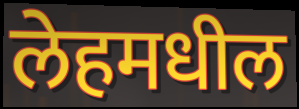
लेहमधील